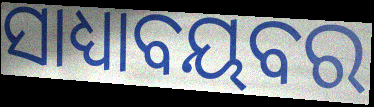
ସାଧ୍ୟାବୟବର